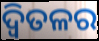
ଦ୍ୱିତଳର